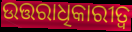
ଉତ୍ତରାଧିକାରୀତ୍ଵ